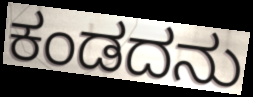
ಕಂಡದನು